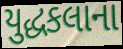
યુદ્ધકલાના